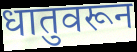
धातुवरून